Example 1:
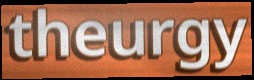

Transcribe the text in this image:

theurgy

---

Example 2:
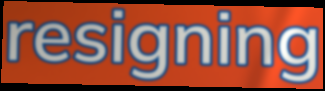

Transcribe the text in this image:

resigning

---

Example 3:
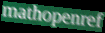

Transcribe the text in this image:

mathopenref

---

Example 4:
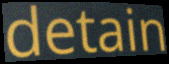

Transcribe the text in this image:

detain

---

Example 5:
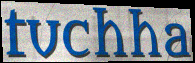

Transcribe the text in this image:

tuchha